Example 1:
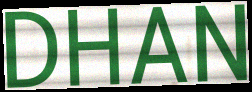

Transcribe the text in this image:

DHAN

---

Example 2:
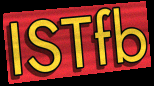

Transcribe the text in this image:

ISTfb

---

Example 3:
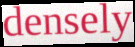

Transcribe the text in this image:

densely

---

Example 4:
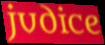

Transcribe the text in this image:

judice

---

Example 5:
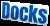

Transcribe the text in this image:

Docks